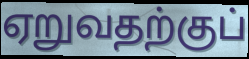
ஏறுவதற்குப்